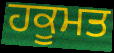
ਹਕੂਮਤ